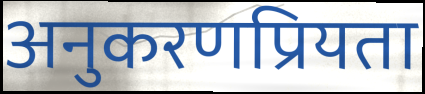
अनुकरणप्रियता